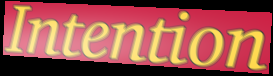
Intention